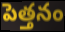
పెత్తనం